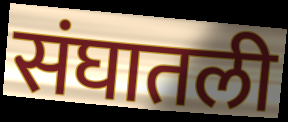
संघातली